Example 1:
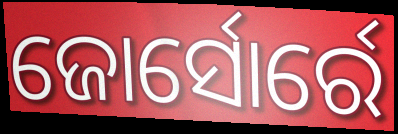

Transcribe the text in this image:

ଜୋର୍ସୋର୍ରେ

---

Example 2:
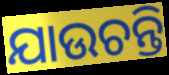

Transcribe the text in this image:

ଯାଉଚନ୍ତି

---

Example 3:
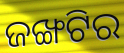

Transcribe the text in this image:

ଜଙ୍ଖଟିର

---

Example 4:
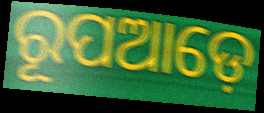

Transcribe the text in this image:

ରୂପଆଡ଼େ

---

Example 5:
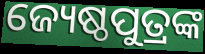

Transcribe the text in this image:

ଜ୍ୟେଷ୍ଠପୁତ୍ରଙ୍କ